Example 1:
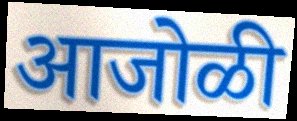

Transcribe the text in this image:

आजोळी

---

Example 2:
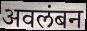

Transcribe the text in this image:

अवलंबन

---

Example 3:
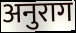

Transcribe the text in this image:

अनुराग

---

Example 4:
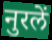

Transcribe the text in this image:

नुरलें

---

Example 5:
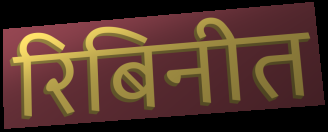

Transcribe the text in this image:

रिबिनीत